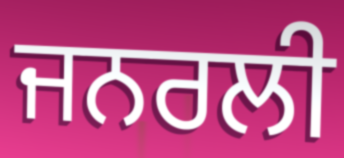
ਜਨਰਲੀ